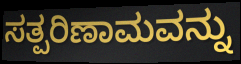
ಸತ್ಪರಿಣಾಮವನ್ನು